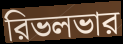
রিভলভার